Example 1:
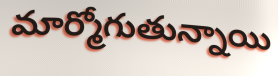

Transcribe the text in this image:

మార్మోగుతున్నాయి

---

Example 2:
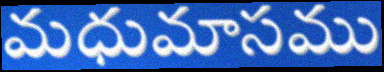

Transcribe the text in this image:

మధుమాసము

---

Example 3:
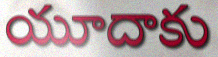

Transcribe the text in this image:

యూదాకు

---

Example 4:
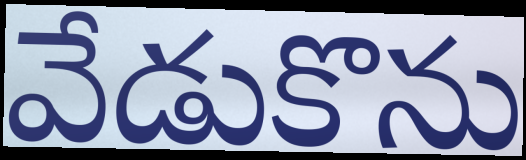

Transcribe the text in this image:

వేడుకొను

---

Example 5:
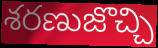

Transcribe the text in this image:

శరణుజొచ్చి